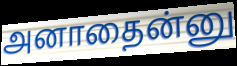
அனாதைன்னு